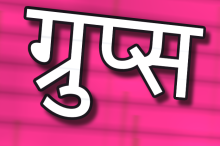
ग्रुप्स